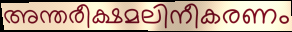
അന്തരീക്ഷമലിനീകരണം